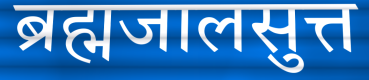
ब्रह्मजालसुत्त